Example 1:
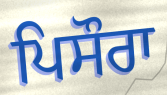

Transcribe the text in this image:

ਪਿਸੌਰਾ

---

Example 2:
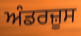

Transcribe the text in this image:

ਅੰਡਰਜ਼ੂਸ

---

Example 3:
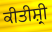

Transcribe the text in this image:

ਕੀਤੀਸ਼੍ਰੀ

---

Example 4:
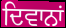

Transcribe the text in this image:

ਦਿਵਾਨਾਂ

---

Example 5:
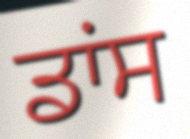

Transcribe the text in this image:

ਡਾਂਸ